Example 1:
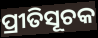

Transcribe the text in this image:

ପ୍ରୀତିସୂଚକ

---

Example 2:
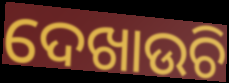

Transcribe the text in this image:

ଦେଖାଉଚି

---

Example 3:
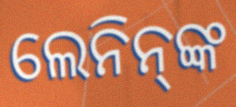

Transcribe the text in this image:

ଲେନିନ୍‌ଙ୍କ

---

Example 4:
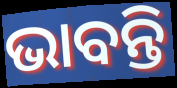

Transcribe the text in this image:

ଭାବନ୍ତି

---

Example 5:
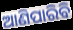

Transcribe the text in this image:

ଆଣିପାରିବି